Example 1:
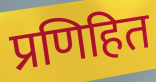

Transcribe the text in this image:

प्रणिहित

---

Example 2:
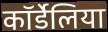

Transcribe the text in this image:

कॉर्डेलिया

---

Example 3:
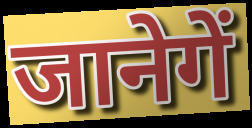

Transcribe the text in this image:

जानेगें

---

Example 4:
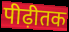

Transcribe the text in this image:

पीढ़ीतक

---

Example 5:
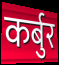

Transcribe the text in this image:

कर्बुर